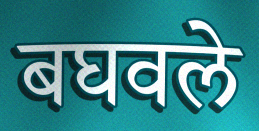
बघवले